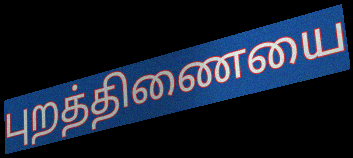
புறத்திணையை